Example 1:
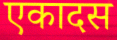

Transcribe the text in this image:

एकादस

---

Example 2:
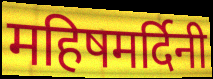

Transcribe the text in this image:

महिषमर्दिनी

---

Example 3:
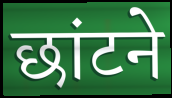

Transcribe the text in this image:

छांटने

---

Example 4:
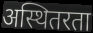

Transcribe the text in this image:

अस्थितरता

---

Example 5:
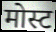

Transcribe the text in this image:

मोस्ट